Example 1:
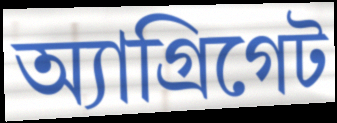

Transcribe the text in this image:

অ্যাগ্রিগেট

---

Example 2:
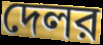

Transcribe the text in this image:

দেলর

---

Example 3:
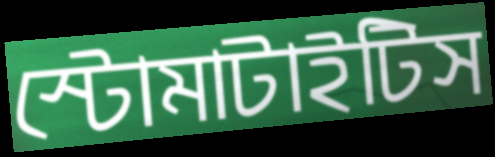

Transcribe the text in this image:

স্টোমাটাইটিস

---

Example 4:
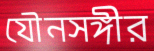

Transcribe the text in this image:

যৌনসঙ্গীর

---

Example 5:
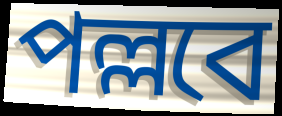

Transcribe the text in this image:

পল্লবে